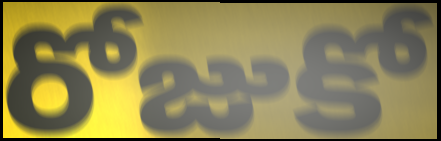
రోజుకో